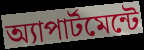
অ্যাপার্টমেন্টে